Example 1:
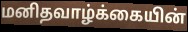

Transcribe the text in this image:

மனிதவாழ்க்கையின்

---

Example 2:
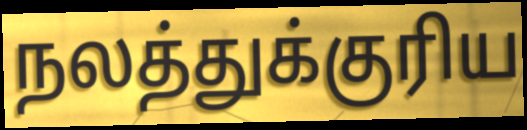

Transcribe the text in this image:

நலத்துக்குரிய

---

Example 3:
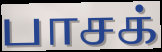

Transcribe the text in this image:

பாசக்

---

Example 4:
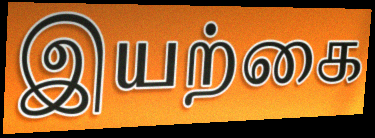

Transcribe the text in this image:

இயற்கை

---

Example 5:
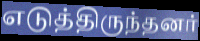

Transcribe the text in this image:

எடுத்திருந்தனர்